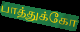
பாத்துக்கோ